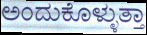
ಅಂದುಕೊಳ್ಳುತ್ತಾ